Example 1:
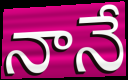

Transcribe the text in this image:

నానే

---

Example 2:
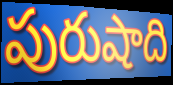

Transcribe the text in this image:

పురుషాది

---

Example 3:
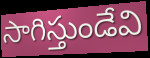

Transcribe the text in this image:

సాగిస్తుండేవి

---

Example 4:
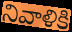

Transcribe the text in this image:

నివాళికి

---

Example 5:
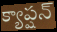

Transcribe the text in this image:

క్యాప్షన్